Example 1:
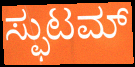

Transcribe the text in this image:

ಸ್ಫುಟಮ್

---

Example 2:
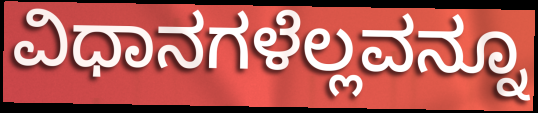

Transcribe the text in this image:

ವಿಧಾನಗಳೆಲ್ಲವನ್ನೂ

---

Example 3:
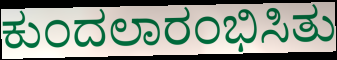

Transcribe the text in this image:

ಕುಂದಲಾರಂಭಿಸಿತು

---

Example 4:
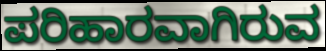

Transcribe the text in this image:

ಪರಿಹಾರವಾಗಿರುವ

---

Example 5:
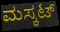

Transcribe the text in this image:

ಮಸ್ಕಟ್